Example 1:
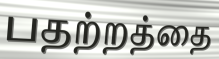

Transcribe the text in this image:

பதற்றத்தை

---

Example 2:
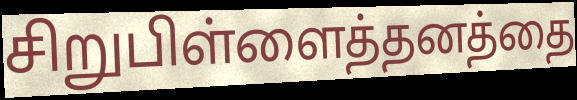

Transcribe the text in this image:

சிறுபிள்ளைத்தனத்தை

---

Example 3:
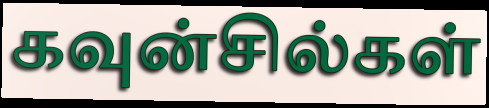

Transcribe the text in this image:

கவுன்சில்கள்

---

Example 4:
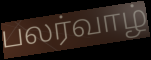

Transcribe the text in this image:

பலர்வாழ்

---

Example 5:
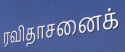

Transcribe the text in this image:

ரவிதாசனைக்